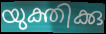
യുക്തിക്കു